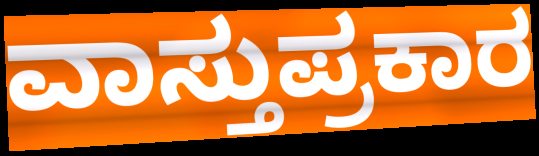
ವಾಸ್ತುಪ್ರಕಾರ